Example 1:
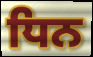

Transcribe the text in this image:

ਧਿਨ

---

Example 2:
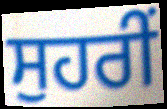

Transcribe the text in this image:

ਸੁਹਰੀਂ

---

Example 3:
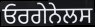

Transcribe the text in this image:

ਓਰਗੇਨੇਲਸ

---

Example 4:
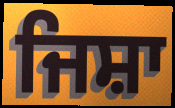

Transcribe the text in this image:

ਜਿਸ਼ਾ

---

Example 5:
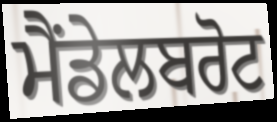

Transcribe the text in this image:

ਮੈਂਡੇਲਬਰੋਟ